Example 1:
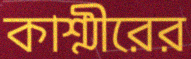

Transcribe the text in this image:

কাশ্মীরের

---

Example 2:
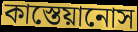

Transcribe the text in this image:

কাস্তেয়ানোস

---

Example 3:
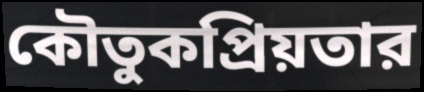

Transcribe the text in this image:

কৌতুকপ্রিয়তার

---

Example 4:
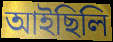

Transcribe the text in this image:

আইছিলি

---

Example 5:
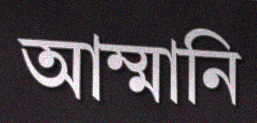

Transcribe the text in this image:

আম্মানি